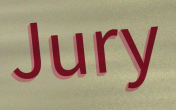
Jury